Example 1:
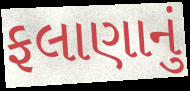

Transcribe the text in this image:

ફલાણાનું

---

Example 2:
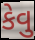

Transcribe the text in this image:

કેવુ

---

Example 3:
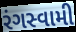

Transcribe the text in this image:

રંગસ્વામી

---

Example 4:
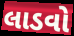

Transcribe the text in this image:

લાડવો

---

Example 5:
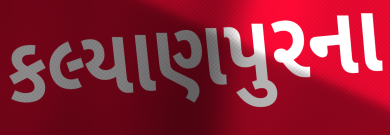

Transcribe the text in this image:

કલ્યાણપુરના